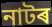
নাটৰ